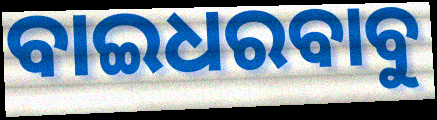
ବାଇଧରବାବୁ